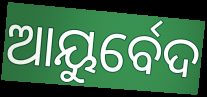
ଆୟୁର୍ବେଦ